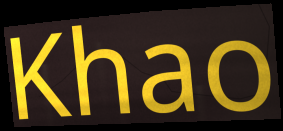
Khao